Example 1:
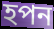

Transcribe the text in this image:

হপন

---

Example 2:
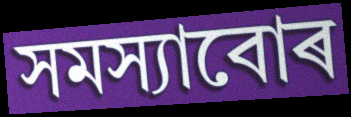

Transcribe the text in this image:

সমস্যাবোৰ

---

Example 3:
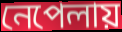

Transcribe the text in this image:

নেপেলায়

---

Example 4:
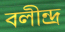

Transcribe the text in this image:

বলীন্দ্ৰ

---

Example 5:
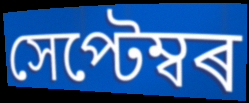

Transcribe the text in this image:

সেপ্টেম্বৰ